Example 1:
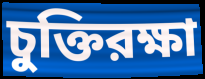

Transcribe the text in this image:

চুক্তিরক্ষা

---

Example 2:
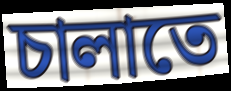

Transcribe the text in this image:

চালাতে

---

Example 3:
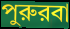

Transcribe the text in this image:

পুরুরবা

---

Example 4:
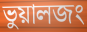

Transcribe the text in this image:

ভুয়ালজং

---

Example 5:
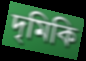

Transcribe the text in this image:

দৃমিকি